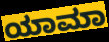
ಯಾಮಾ